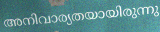
അനിവാര്യതയായിരുന്നു